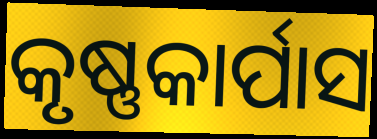
କୃଷ୍ଣକାର୍ପାସ